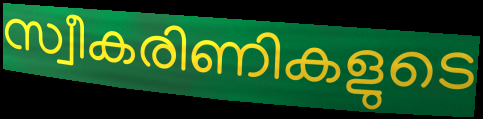
സ്വീകരിണികളുടെ